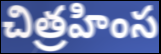
చిత్రహింస